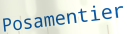
Posamentier